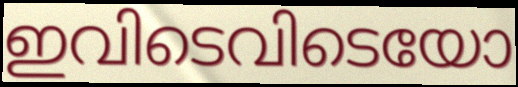
ഇവിടെവിടെയോ